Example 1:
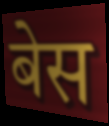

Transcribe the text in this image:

बेस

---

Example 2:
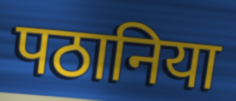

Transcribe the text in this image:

पठानिया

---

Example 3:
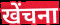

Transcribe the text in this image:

खेंचना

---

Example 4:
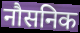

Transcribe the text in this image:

नौसनिक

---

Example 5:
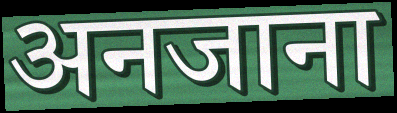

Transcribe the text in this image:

अनजाना